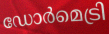
ഡോർമെട്രി